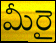
మీరై